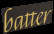
batter